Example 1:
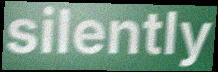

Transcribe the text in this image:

silently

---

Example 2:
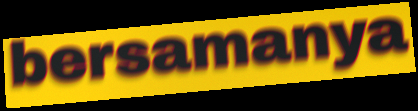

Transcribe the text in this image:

bersamanya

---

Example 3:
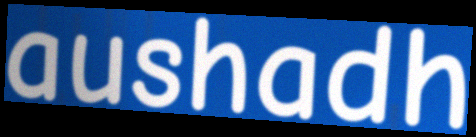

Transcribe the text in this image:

aushadh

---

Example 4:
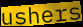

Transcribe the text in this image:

ushers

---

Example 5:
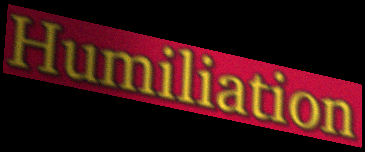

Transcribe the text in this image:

Humiliation